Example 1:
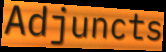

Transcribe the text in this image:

Adjuncts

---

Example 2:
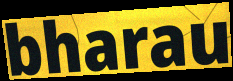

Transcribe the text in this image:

bharau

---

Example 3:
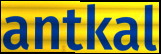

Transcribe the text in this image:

antkal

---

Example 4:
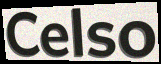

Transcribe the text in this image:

Celso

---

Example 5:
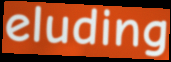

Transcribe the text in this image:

eluding